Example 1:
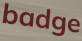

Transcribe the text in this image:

badge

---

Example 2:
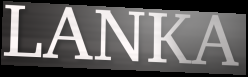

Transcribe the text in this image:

LANKA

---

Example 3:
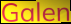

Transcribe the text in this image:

Galen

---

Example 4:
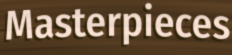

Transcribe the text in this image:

Masterpieces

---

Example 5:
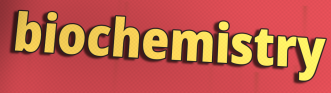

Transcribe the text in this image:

biochemistry